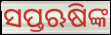
ସପ୍ତଋଷିଙ୍କ